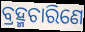
ବ୍ରହ୍ମଚାରିଣେ